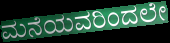
ಮನೆಯವರಿಂದಲೇ